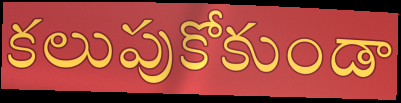
కలుపుకోకుండా